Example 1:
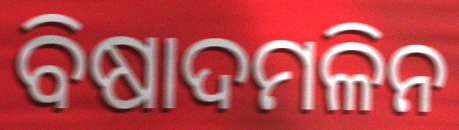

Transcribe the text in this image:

ବିଷାଦମଳିନ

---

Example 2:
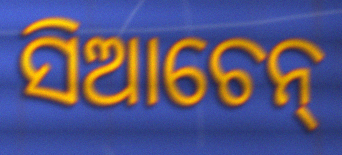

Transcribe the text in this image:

ସିଆଚେନ୍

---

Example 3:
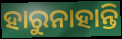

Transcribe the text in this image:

ହାରୁନାହାନ୍ତି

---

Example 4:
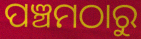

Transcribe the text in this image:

ପଞ୍ଚମଠାରୁ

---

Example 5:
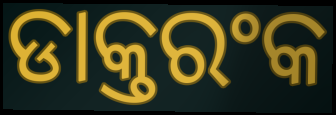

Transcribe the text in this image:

ଡାକ୍ତରଂକ